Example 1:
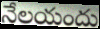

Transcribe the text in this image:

నేలయందు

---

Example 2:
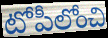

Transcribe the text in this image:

టోపీలోంచి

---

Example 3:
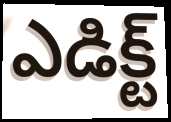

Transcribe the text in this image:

ఎడిక్ట్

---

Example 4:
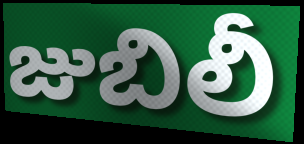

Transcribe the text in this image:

జుబిలీ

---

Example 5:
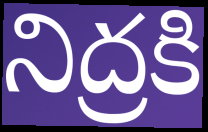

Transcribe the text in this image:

నిద్రకి